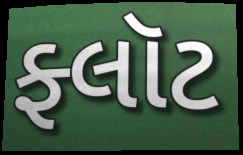
ફ્લૉટ